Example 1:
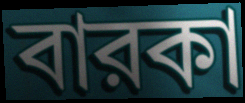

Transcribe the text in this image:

বারকা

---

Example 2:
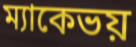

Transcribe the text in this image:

ম্যাকেভয়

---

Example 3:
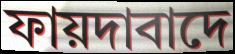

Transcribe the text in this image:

ফায়দাবাদে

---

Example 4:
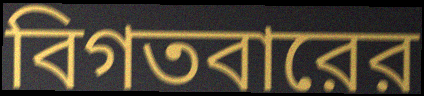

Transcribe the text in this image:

বিগতবারের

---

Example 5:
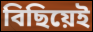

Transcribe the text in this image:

বিছিয়েই